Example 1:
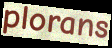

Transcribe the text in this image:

plorans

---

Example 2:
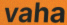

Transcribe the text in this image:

vaha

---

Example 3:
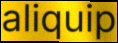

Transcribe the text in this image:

aliquip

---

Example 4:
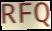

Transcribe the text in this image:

RFQ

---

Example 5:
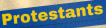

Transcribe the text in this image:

Protestants